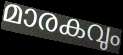
മാരകവും